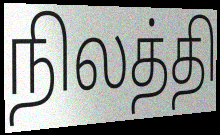
நிலத்தி